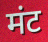
मंट